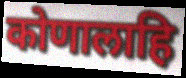
कोणालाहि